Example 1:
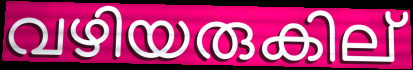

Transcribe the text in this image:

വഴിയരുകില്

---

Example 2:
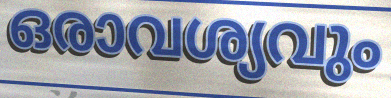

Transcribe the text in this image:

ഒരാവശ്യവും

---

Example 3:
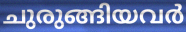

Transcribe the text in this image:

ചുരുങ്ങിയവർ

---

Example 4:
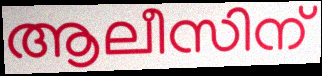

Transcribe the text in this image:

ആലീസിന്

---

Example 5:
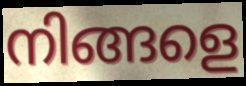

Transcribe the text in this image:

നിങ്ങളെ